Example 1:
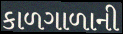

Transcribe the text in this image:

કાળગાળાની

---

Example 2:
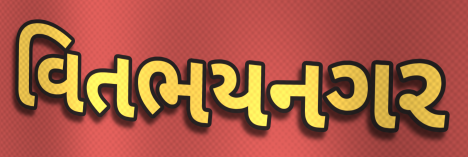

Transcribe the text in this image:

વિતભયનગર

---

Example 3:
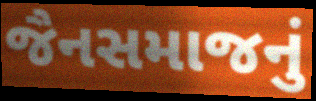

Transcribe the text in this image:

જૈનસમાજનું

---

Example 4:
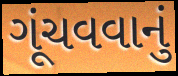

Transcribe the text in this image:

ગૂંચવવાનું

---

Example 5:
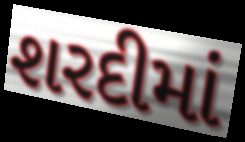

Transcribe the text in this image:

શરદીમાં